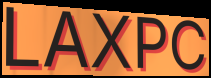
LAXPC